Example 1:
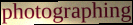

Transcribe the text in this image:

photographing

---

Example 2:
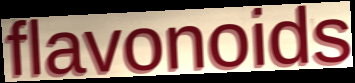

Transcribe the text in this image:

flavonoids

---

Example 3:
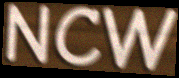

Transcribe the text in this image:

NCW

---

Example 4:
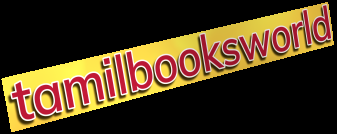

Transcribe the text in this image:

tamilbooksworld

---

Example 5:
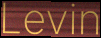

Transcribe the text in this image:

Levin